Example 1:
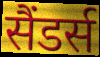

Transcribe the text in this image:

सैंडर्स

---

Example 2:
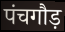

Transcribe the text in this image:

पंचगौड़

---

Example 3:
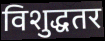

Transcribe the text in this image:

विशुद्धतर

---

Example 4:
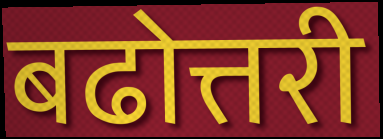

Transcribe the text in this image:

बढोत्तरी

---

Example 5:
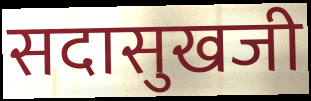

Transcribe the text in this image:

सदासुखजी